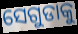
ସେଗୁଡାକୁ